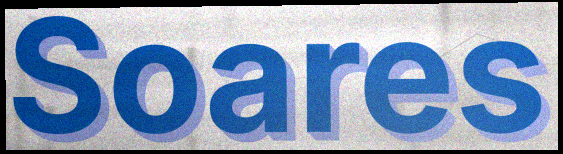
Soares